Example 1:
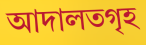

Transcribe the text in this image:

আদালতগৃহ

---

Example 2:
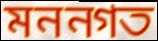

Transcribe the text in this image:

মননগত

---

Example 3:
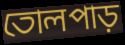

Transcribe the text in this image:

তোলপাড়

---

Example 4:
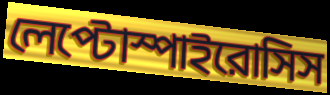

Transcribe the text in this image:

লেপ্টোস্পাইরোসিস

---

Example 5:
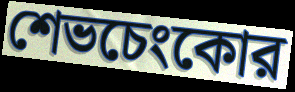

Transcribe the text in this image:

শেভচেংকোর